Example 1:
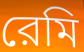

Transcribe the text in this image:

রেমি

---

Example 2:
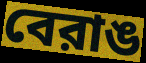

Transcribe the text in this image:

বেরাঙ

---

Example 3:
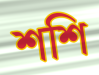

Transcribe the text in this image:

শশি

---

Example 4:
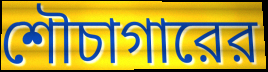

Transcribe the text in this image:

শৌচাগারের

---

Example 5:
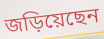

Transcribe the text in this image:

জড়িয়েছেন